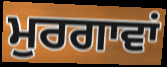
ਮੁਰਗਾਵਾਂ